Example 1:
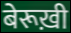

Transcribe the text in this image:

बेरूख़ी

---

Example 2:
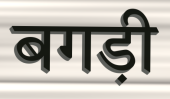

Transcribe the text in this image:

बगड़ी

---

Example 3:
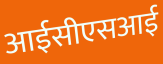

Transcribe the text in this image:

आईसीएसआई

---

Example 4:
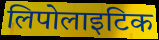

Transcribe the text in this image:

लिपोलाइटिक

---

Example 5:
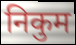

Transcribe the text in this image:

निकुम